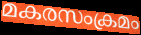
മകരസംക്രമം